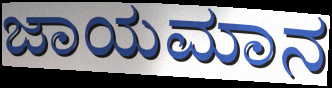
ಜಾಯಮಾನ